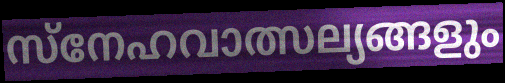
സ്നേഹവാത്സല്യങ്ങളും